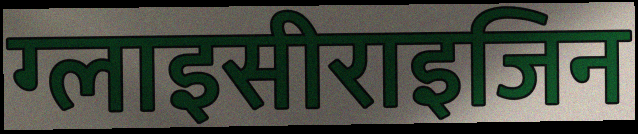
ग्लाइसीराइजिन